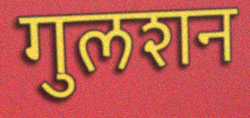
गुलशन